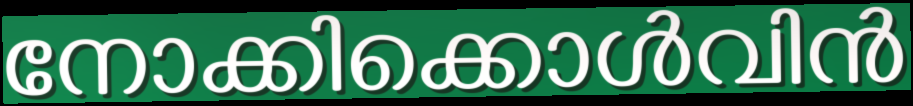
നോക്കിക്കൊൾവിൻ